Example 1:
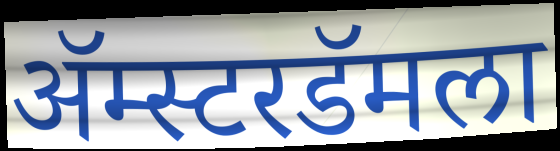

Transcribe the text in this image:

ॲम्स्टरडॅमला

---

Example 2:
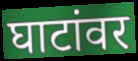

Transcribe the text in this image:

घाटांवर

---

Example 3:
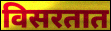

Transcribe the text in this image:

विसरतात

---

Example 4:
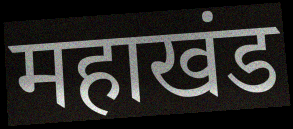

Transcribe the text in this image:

महाखंड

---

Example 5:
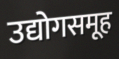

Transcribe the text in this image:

उद्योगसमूह